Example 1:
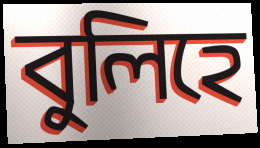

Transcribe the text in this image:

বুলিহে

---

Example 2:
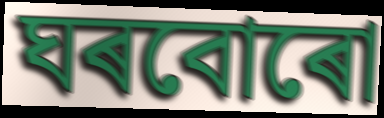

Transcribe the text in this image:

ঘৰবোৰো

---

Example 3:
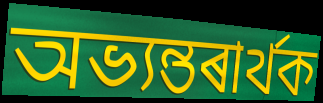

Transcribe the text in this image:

অভ্যন্তৰাৰ্থক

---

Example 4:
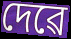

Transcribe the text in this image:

দেৱে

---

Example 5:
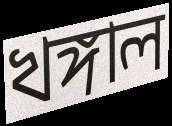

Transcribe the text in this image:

খঙ্গাল